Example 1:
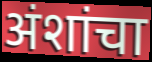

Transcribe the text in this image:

अंशांचा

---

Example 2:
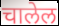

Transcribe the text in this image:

चालेल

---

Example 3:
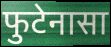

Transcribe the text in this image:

फुटेनासा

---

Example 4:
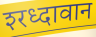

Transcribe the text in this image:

श्रध्दावान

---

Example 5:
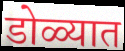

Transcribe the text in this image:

डोळ्यात